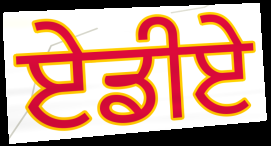
ਏਡੀਏ